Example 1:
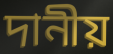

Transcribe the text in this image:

দানীয়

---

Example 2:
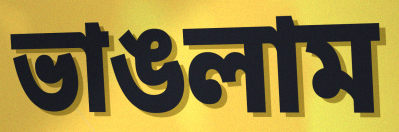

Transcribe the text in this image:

ভাঙলাম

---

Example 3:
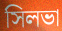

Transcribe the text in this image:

সিলভা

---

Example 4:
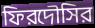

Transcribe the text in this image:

ফিরদৌসির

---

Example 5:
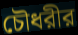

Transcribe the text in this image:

চৌধরীর